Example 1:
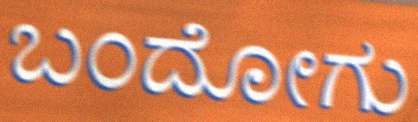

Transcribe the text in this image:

ಬಂದೋಗು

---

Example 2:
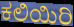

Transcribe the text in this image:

ಕಲಿಯಿರಿ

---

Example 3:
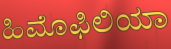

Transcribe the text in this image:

ಹಿಮೊಫಿಲಿಯಾ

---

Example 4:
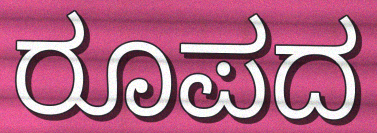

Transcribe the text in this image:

ರೂಪದ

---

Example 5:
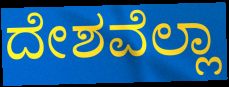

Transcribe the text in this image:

ದೇಶವೆಲ್ಲಾ